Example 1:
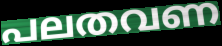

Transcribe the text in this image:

പലതവണ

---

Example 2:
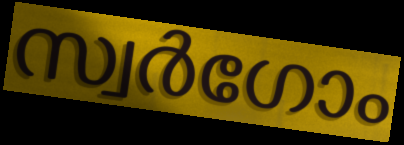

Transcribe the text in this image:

സ്വർഗോം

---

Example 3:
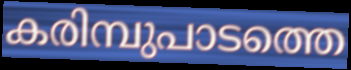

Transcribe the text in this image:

കരിമ്പുപാടത്തെ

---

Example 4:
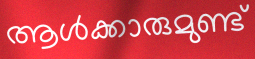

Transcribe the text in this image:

ആൾക്കാരുമുണ്ട്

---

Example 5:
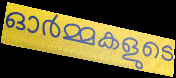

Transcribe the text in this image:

ഓർമ്മകളുടെ